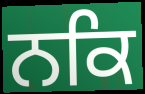
ਨਕਿ